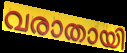
വരാതായി